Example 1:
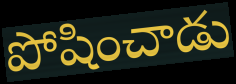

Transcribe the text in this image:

పోషించాడు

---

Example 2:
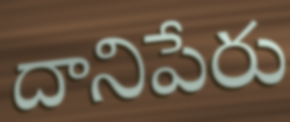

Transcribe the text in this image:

దానిపేరు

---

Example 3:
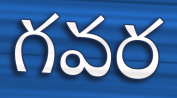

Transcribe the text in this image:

గవర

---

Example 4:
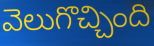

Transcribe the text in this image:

వెలుగొచ్చింది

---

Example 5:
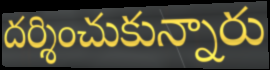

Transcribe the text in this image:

దర్శించుకున్నారు